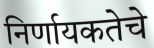
निर्णायकतेचे